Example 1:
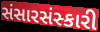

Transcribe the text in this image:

સંસારસંસ્કારી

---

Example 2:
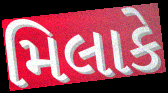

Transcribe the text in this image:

મિલાકે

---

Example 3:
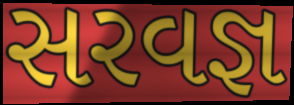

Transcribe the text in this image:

સરવજ્ઞ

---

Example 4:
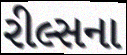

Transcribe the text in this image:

રીલ્સના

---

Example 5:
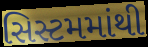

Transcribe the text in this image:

સિસ્ટમમાંથી